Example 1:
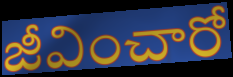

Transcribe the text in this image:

జీవించారో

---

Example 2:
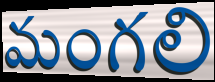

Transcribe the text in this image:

మంగలి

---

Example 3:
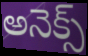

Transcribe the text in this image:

అనెక్స్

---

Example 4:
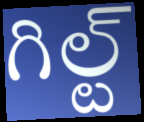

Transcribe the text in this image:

గిల్ట్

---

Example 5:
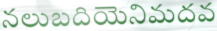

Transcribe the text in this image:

నలుబదియెనిమదవ